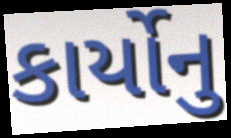
કાર્યોનુ